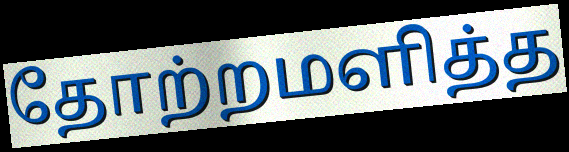
தோற்றமளித்த